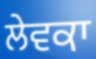
ਲੇਵਕਾ